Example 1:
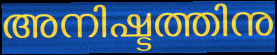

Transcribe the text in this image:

അനിഷ്ടത്തിനു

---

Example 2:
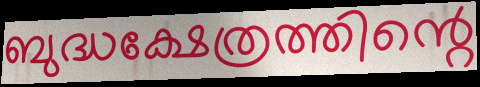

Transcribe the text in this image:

ബുദ്ധക്ഷേത്രത്തിന്റെ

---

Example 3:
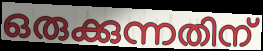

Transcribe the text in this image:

ഒരുക്കുന്നതിന്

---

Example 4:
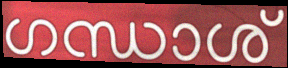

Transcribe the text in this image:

ഗന്ധാശ്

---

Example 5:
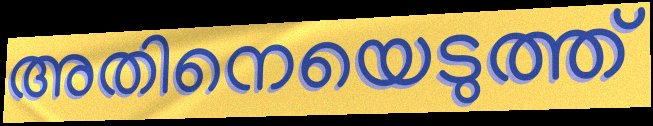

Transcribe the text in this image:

അതിനെയെടുത്ത്